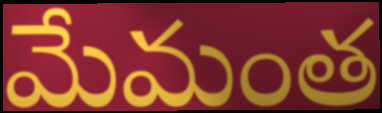
మేమంత